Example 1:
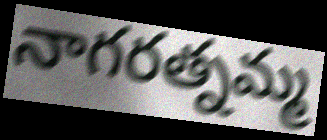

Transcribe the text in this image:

నాగరత్నమ్మ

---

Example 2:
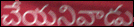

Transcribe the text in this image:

చేయనివాడు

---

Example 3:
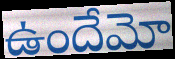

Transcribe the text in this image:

ఉందేమో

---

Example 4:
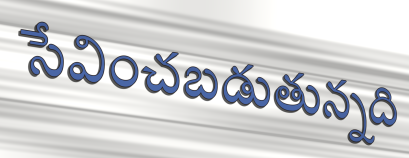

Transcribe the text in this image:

సేవించబడుతున్నది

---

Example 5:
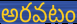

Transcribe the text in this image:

అరవటం